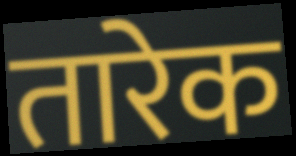
तारेक